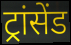
ट्रांसेंड